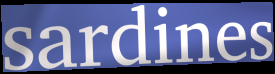
sardines